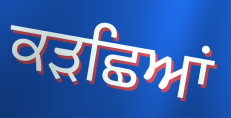
ਕੜਛਿਆਂ